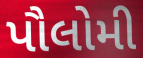
પૌલોમી